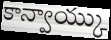
కాన్వాయ్కు